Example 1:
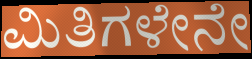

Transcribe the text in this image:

ಮಿತಿಗಳೇನೇ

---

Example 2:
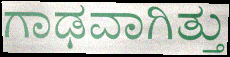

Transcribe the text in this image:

ಗಾಢವಾಗಿತ್ತು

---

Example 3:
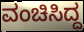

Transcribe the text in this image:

ವಂಚಿಸಿದ್ದ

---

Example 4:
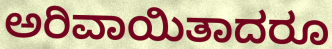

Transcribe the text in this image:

ಅರಿವಾಯಿತಾದರೂ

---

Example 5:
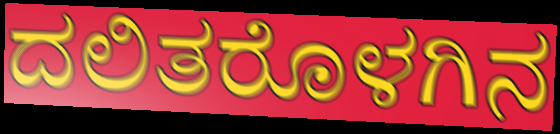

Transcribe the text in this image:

ದಲಿತರೊಳಗಿನ